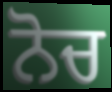
ਨੋਚ